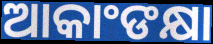
ଆକାଂଙକ୍ଷା